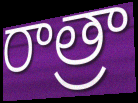
రాత్రా